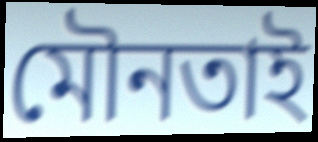
মৌনতাই